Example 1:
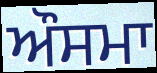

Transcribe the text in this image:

ਔਸਮਾ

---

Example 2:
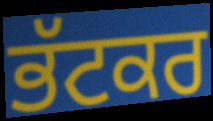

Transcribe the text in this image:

ਭੱਟਕਰ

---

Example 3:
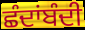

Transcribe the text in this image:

ਛੰਦਾਂਬੰਦੀ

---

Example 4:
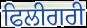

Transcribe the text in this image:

ਫਿਲੀਗਰੀ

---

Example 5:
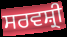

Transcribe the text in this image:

ਸਰਵਸ਼੍ਰੀ